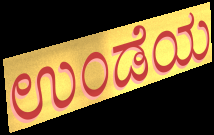
ಉಂಡೆಯ